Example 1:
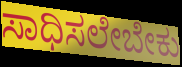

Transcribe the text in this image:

ಸಾಧಿಸಲೇಬೇಕು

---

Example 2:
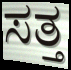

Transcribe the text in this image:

ಸತ್ತ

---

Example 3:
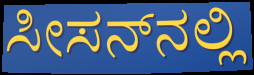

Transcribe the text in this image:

ಸೀಸನ್‌ನಲ್ಲಿ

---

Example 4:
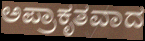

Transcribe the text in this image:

ಅಪ್ರಾಕೃತವಾದ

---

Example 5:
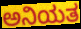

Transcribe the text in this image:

ಅನಿಯತ